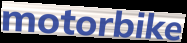
motorbike